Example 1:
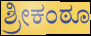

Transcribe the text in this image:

ಶ್ರೀಕಂಠೂ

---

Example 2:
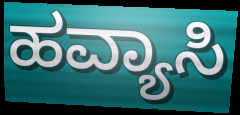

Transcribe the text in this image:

ಹವ್ಯಾಸಿ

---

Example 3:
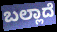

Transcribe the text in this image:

ಬಲ್ಲಾದೆ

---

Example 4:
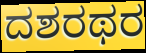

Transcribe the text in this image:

ದಶರಥರ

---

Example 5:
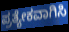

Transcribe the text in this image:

ಪ್ರತ್ಯೇಕವಾಗಿಸಿ